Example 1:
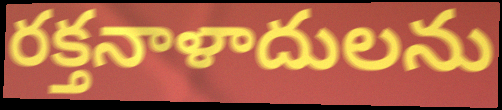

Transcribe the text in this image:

రక్తనాళాదులను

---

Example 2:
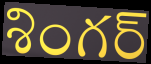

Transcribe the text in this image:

శింగర్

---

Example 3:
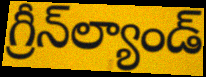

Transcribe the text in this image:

గ్రీన్‌ల్యాండ్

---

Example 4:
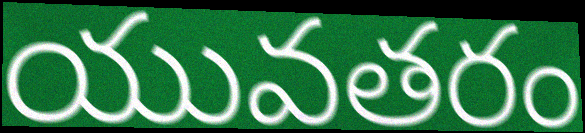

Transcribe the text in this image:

యువతరం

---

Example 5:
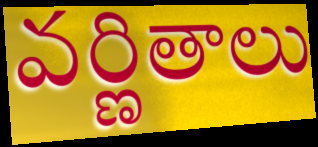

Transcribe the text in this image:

వర్ణితాలు